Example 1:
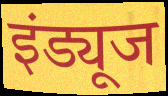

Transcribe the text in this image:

इंड्यूज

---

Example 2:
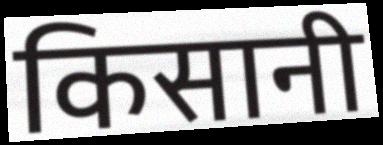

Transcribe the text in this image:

किसानी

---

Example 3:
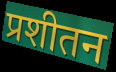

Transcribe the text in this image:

प्रशीतन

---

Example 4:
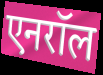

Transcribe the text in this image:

एनरॉल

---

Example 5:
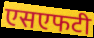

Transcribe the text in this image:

एसएफटी